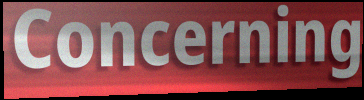
Concerning